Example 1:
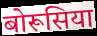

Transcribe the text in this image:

बोरूसिया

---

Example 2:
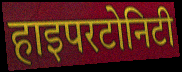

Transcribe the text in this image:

हाइपरटोनिटी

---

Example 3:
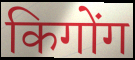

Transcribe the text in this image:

किगोंग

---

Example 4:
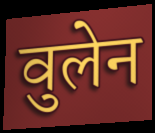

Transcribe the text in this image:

वुलेन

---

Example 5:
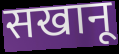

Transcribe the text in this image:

सखानू